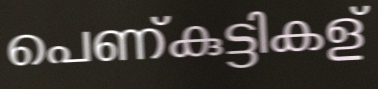
പെണ്കുട്ടികള്